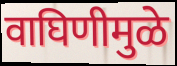
वाघिणीमुळे